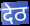
देठ